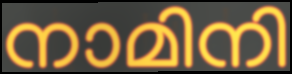
നാമിനി